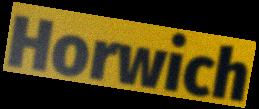
Horwich